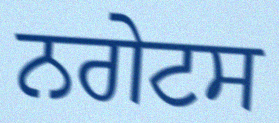
ਨਗੇਟਸ